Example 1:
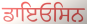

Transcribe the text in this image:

ਡਾਇਓਸਿਨ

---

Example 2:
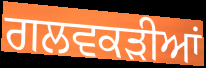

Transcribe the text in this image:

ਗਲਵਕੜੀਆਂ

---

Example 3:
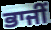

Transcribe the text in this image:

ਭਾਜੀਂ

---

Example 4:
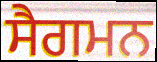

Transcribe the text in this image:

ਸੈਗਮਨ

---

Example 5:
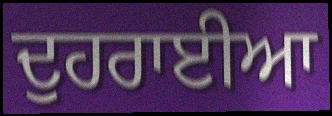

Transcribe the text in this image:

ਦੁਹਰਾਈਆ